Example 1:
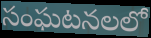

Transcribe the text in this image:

సంఘటనలలో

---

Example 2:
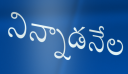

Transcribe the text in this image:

నిన్నాడనేల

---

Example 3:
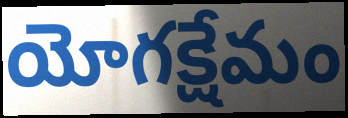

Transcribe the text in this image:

యోగక్షేమం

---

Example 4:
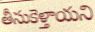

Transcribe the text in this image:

తీసుకెళ్తాయని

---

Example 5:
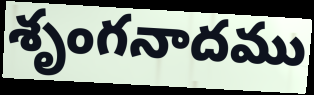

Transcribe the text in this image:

శృంగనాదము